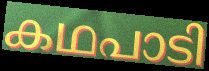
കഥപാടി